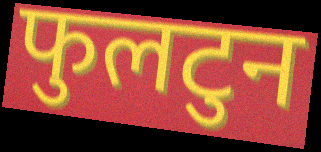
फुलटुन